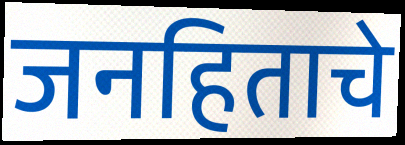
जनहिताचे